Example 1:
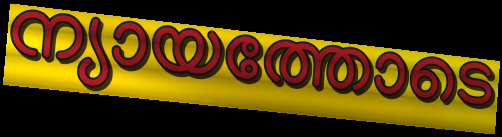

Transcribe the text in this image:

ന്യായത്തോടെ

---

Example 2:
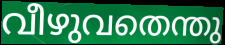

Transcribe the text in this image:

വീഴുവതെന്തു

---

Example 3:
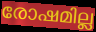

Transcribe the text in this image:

രോഷമില്ല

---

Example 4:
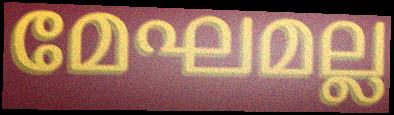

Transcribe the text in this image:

മേഘമല്ല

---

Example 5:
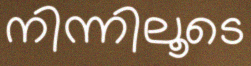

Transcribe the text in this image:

നിന്നിലൂടെ